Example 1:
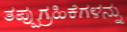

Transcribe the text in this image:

ತಪ್ಪುಗ್ರಹಿಕೆಗಳನ್ನು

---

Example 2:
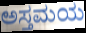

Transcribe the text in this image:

ಅಸ್ತಮಯ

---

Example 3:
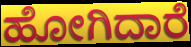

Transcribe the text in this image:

ಹೋಗಿದಾರೆ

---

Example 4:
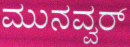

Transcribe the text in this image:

ಮುನವ್ವರ್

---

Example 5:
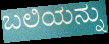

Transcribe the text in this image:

ಬಲಿಯನ್ನು